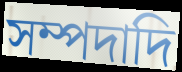
সম্পদাদি